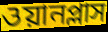
ওয়ানপ্লাস